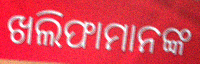
ଖଲିଫାମାନଙ୍କ